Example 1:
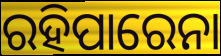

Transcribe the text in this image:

ରହିପାରେନା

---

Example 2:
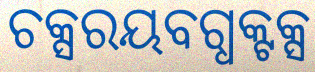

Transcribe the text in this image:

ଚକ୍ସରୟବଗ୍ଧକ୍ଟକ୍ସ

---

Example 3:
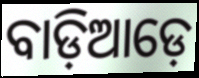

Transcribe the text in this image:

ବାଡ଼ିଆଡ଼େ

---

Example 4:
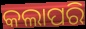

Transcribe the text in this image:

କଲାପରି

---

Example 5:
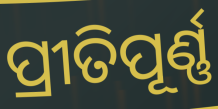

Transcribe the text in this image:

ପ୍ରୀତିପୂର୍ଣ୍ଣ